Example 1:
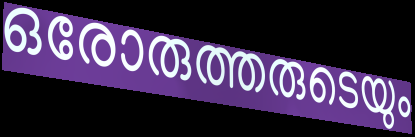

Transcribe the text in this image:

ഒരോരുത്തരുടെയും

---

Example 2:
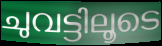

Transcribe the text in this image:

ചുവട്ടിലൂടെ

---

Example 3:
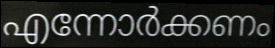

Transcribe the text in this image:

എന്നോർക്കണം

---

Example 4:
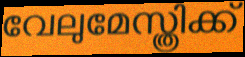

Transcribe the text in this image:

വേലുമേസ്ത്രിക്ക്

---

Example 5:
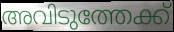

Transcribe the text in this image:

അവിടുത്തേക്ക്